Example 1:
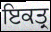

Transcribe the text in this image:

ਇਕਤ੍ਰ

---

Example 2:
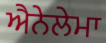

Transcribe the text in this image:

ਐਨੇਲੇਮਾ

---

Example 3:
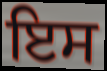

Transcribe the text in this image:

ਇਸ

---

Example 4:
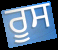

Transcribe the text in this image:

ਰੂਸ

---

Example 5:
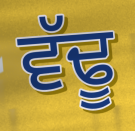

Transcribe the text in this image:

ਵੱਢੂ